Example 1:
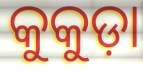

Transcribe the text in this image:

କୁକୁଡ଼ା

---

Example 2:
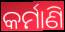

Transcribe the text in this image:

କର୍ମାଣି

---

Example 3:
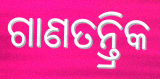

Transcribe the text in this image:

ଗାଣତନ୍ତ୍ରିକ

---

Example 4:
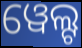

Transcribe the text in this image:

ୱେଲ୍ଟ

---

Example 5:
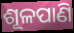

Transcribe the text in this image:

ଶୂଳପାଣି